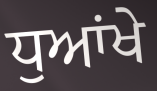
ਧੁਆਂਖੇ